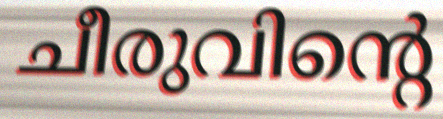
ചീരുവിന്റെ